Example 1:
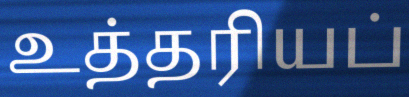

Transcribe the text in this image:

உத்தரியப்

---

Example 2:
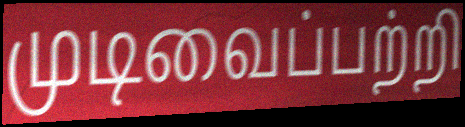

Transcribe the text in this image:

முடிவைப்பற்றி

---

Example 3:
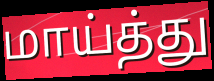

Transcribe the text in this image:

மாய்த்து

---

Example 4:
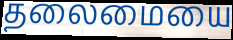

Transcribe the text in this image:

தலைமையை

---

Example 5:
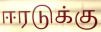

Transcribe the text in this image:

ஈரடுக்கு